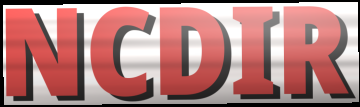
NCDIR